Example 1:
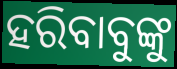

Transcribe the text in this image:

ହରିବାବୁଙ୍କୁ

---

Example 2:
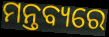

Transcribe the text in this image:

ମନ୍ତବ୍ୟରେ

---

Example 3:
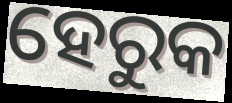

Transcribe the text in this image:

ହେରୁକ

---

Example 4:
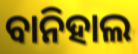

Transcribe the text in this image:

ବାନିହାଲ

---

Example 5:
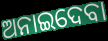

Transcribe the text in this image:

ଅନାଇଦେବା